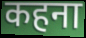
कहना